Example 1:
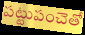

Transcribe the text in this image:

పట్టుపంచెతో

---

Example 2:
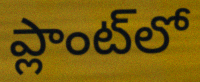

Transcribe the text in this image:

ప్లాంట్‌లో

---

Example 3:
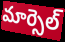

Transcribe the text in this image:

మార్సెల్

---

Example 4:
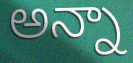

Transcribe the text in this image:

అన్నా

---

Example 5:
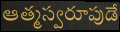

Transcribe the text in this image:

ఆత్మస్వరూపుడే